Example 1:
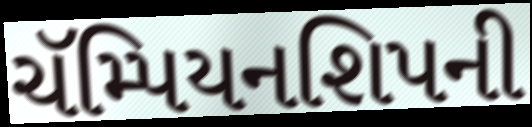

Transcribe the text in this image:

ચૅમ્પિયનશિપની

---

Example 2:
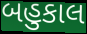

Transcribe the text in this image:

બહુકાલ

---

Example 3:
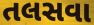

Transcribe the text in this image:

તલસવા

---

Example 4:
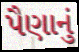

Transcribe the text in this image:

પૈણાનું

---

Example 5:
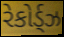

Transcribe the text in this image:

રેકોર્ડ્ઝ